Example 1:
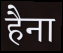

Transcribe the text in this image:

हैना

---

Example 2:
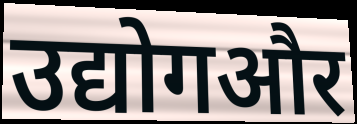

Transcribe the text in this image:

उद्योगऔर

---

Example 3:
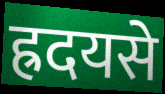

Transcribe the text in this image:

ह्रदयसे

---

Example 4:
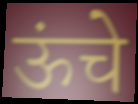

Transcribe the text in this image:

ऊंचे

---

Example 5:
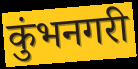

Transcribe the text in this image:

कुंभनगरी